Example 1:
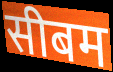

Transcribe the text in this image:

सीबम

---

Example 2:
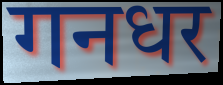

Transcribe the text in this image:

गनधर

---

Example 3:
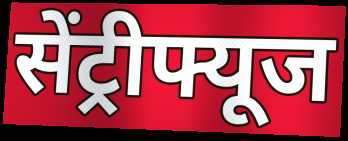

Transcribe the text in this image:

सेंट्रीफ्यूज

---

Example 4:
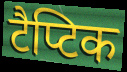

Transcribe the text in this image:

टैप्टिक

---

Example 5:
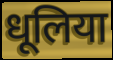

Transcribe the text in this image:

धूलिया